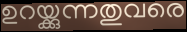
ഉറയ്ക്കുന്നതുവരെ